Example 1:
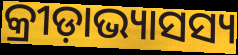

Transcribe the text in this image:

କ୍ରୀଡ଼ାଭ୍ୟାସସ୍ୟ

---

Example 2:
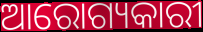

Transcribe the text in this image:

ଆରୋଗ୍ୟକାରୀ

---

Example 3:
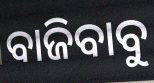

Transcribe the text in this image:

ବାଜିବାବୁ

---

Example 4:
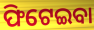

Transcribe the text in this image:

ଫିଟେଇବା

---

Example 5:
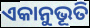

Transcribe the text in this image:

ଏକାନୁଭୂତି